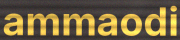
ammaodi